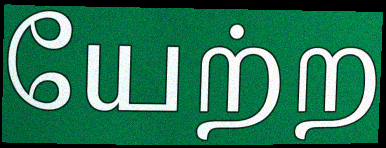
யேற்ற